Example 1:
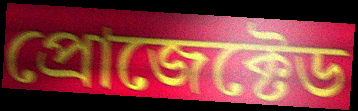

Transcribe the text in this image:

প্রোজেক্টেড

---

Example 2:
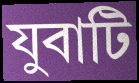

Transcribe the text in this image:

যুবাটি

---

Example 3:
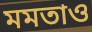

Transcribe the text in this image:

মমতাও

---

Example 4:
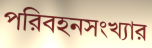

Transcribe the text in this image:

পরিবহনসংখ্যার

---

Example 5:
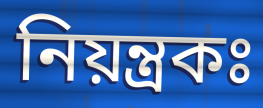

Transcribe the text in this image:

নিয়ন্ত্রকঃ